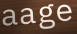
aage